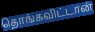
தொங்கவிட்டான்